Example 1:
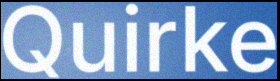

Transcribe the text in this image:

Quirke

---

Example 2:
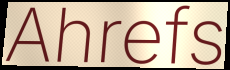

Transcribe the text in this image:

Ahrefs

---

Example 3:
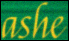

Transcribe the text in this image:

ashe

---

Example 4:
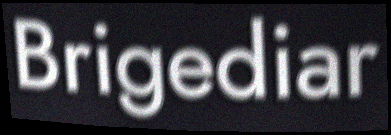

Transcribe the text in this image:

Brigediar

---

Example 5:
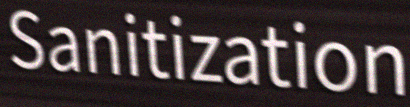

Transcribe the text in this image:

Sanitization